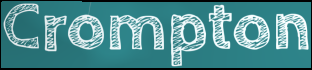
Crompton